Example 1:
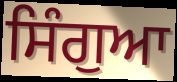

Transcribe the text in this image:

ਸਿੰਗੁਆ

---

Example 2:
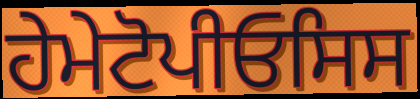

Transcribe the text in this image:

ਹੇਮੇਟੋਪੀਓਸਿਸ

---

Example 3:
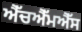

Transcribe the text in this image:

ਐੱਚਐੱਮਐੱਸ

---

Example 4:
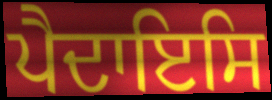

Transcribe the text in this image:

ਪੈਦਾਇਸਿ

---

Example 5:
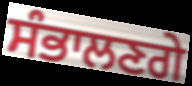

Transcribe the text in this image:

ਸੰਭਾਲਣਗੇ